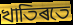
খাতিৰতে